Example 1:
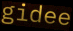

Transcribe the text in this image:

gidee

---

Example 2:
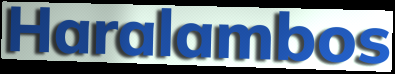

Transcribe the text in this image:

Haralambos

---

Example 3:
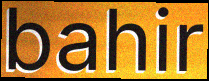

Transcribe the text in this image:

bahir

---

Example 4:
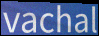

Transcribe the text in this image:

vachal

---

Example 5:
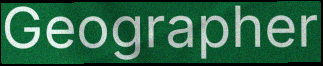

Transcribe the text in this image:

Geographer